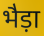
भैड़ा